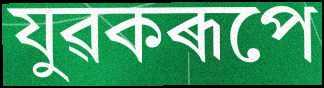
যুৱকৰূপে